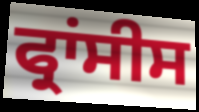
ਫ੍ਰਾਂਸੀਸ